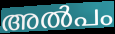
അൽപം